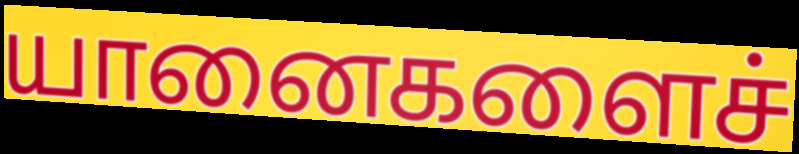
யானைகளைச்